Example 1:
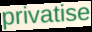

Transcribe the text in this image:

privatise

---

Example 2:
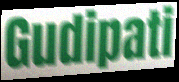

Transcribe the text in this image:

Gudipati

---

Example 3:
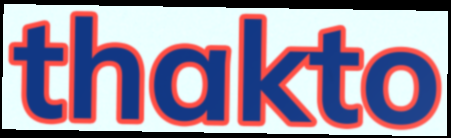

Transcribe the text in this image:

thakto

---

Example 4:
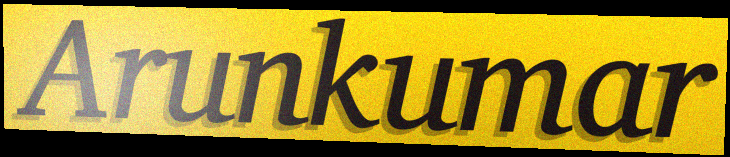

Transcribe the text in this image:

Arunkumar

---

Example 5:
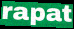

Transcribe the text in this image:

rapat